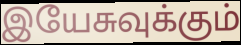
இயேசுவுக்கும்